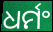
ଧର୍ମଂ